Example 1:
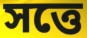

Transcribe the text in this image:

সত্তে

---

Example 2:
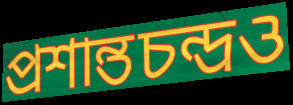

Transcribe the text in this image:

প্রশান্তচন্দ্রও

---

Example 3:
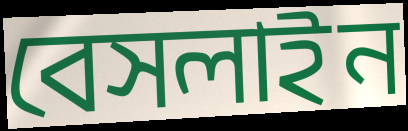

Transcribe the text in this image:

বেসলাইন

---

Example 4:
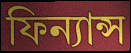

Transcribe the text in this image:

ফিন্যান্স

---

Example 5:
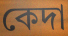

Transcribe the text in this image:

কেদা